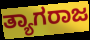
ತ್ಯಾಗರಾಜ